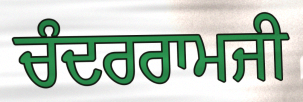
ਚੰਦਰਰਾਮਜੀ